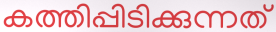
കത്തിപ്പിടിക്കുന്നത്